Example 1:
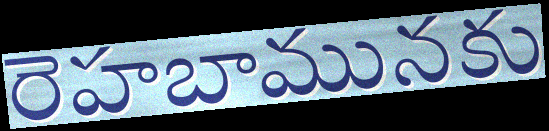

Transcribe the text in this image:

రెహబామునకు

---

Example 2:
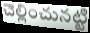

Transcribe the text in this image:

చెల్లించునట్టి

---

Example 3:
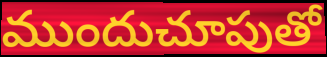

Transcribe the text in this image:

ముందుచూపుతో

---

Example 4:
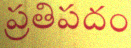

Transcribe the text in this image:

ప్రతిపదం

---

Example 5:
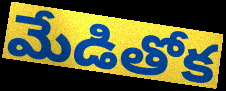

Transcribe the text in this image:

మేడితోక